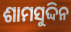
ଶାମସୁଦ୍ଦିନ